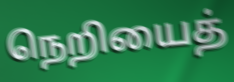
நெறியைத்